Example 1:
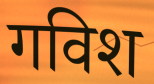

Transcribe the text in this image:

गविश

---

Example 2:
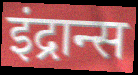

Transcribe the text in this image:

इंद्रान्स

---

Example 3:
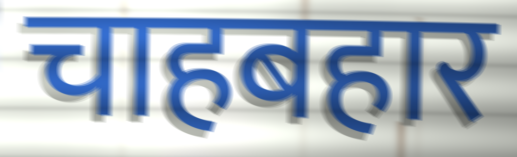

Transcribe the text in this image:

चाहबहार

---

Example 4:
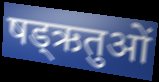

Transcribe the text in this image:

षड्ऋतुओं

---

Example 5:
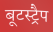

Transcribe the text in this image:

बूटस्ट्रैप